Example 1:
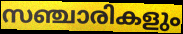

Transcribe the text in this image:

സഞ്ചാരികളും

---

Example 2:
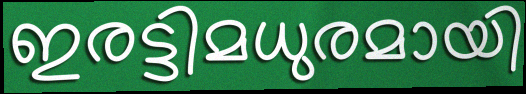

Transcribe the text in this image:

ഇരട്ടിമധുരമായി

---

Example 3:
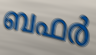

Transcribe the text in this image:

ബഫർ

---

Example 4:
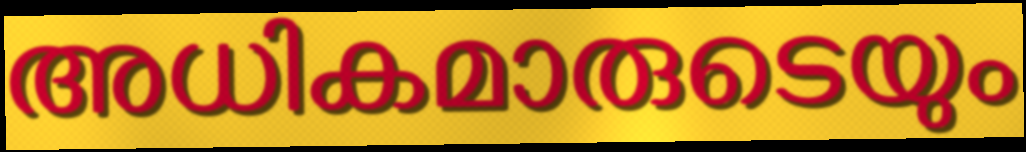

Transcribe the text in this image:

അധികമാരുടെയും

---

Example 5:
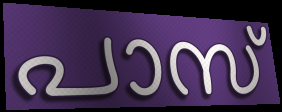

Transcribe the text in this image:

പാസ്